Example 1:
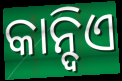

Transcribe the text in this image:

କାନ୍ଦିଏ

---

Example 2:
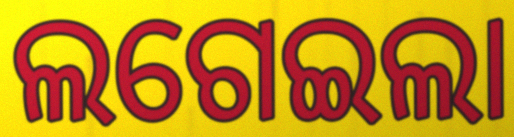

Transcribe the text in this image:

ଲଗେଇଲା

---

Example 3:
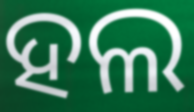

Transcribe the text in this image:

ହଲ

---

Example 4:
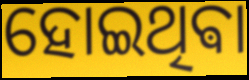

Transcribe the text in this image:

ହୋଇଥିଵା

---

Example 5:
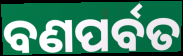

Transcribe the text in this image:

ବଣପର୍ବତ